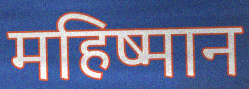
महिष्मान